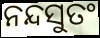
ନନ୍ଦସୁତଂ